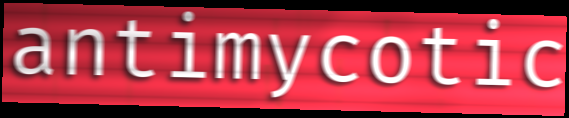
antimycotic